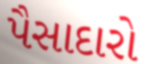
પૈસાદારો